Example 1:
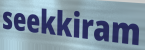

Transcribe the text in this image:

seekkiram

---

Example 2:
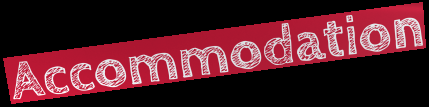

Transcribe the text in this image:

Accommodation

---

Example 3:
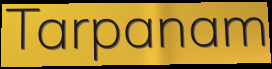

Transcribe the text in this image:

Tarpanam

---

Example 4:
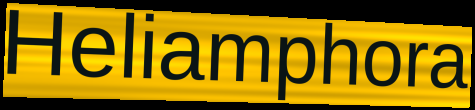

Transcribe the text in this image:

Heliamphora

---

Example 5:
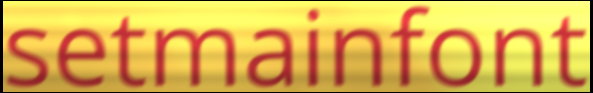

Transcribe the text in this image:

setmainfont